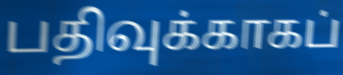
பதிவுக்காகப்